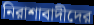
নিরাশাবাদীদের